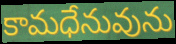
కామధేనువును